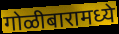
गोळीबारामध्ये